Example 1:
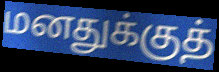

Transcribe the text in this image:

மனதுக்குத்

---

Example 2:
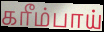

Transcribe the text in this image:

கரீம்பாய்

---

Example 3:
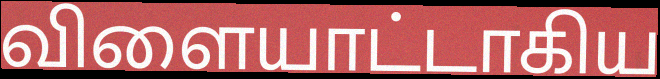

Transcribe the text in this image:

விளையாட்டாகிய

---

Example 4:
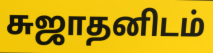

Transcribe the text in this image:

சுஜாதனிடம்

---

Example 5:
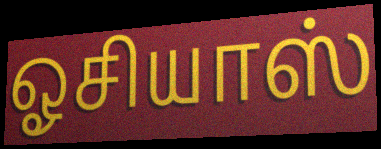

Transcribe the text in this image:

ஓசியாஸ்